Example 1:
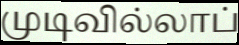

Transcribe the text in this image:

முடிவில்லாப்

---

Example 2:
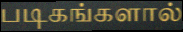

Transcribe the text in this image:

படிகங்களால்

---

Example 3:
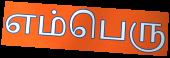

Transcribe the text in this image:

எம்பெரு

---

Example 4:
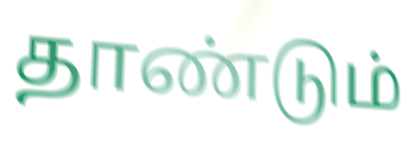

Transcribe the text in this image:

தாண்டும்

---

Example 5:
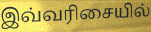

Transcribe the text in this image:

இவ்வரிசையில்